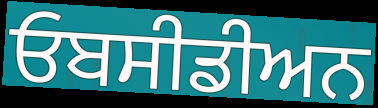
ਓਬਸੀਡੀਅਨ